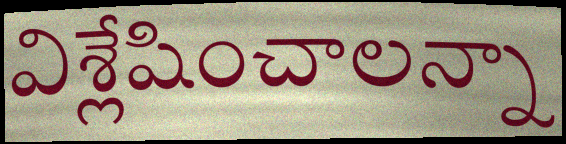
విశ్లేషించాలన్నా